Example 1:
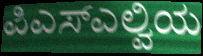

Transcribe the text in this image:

ಪಿಎಸ್ಎಲ್ವಿಯ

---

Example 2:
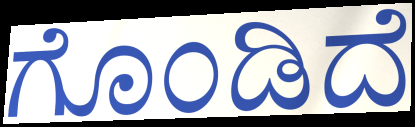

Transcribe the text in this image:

ಗೊಂಡಿದೆ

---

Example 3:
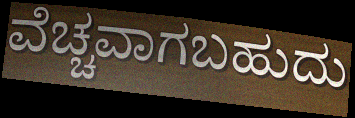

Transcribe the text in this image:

ವೆಚ್ಚವಾಗಬಹುದು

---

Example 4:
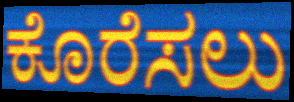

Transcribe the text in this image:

ಕೊರೆಸಲು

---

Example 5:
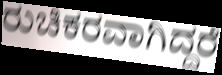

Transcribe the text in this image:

ರುಚಿಕರವಾಗಿದ್ದರೆ